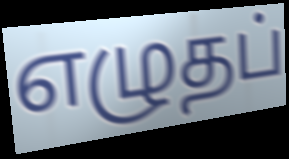
எழுதப்